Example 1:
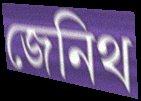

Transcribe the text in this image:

জেনিথ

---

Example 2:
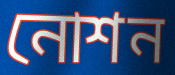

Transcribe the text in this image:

নোশন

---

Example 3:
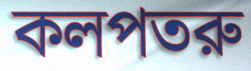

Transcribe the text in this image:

কলপতরু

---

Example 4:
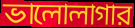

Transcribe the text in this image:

ভালোলাগার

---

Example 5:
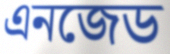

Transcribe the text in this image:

এনজেড